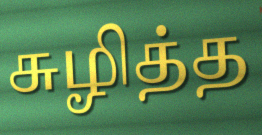
சுழித்த